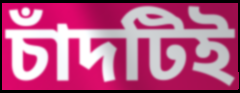
চাঁদটিই